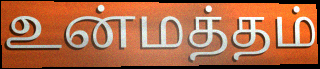
உன்மத்தம்